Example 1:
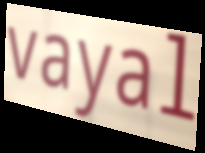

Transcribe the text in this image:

vayal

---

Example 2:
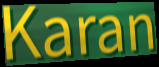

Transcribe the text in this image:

Karan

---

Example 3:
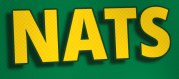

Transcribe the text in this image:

NATS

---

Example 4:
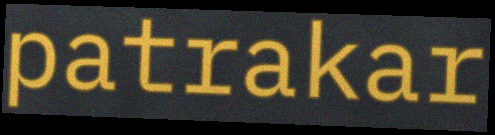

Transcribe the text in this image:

patrakar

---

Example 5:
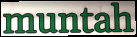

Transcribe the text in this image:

muntah